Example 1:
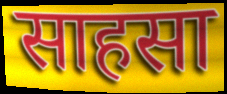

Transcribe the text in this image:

साहसा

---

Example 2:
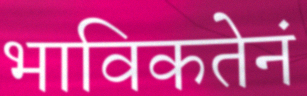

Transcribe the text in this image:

भाविकतेनं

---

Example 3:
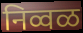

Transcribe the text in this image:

निव्वळ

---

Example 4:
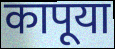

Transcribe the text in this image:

कापूया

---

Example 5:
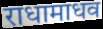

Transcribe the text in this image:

राधामाधव